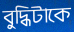
বুদ্ধিটাকে